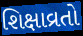
શિક્ષાવ્રતો